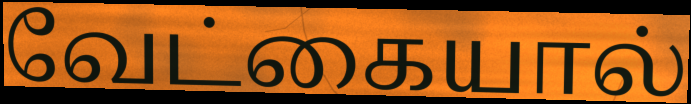
வேட்கையால்